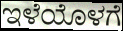
ಇಳೆಯೊಳಗೆ